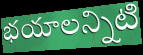
భయాలన్నిటి